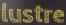
lustre